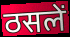
ठसलें